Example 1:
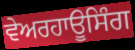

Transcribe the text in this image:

ਵੇਅਰਹਾਊਸਿੰਗ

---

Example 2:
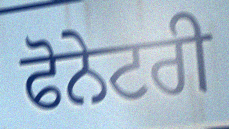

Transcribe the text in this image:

ਫੋਨੇਟਰੀ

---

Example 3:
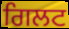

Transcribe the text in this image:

ਗਿਲਟ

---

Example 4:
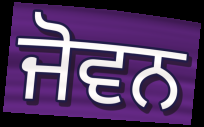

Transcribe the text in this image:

ਜੋਵਨ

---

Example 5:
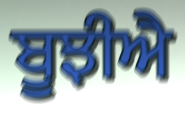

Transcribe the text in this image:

ਬੂਝੀਐ